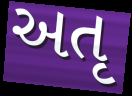
અતૃ